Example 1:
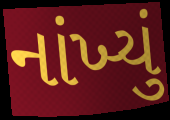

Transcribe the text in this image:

નાંખ્યું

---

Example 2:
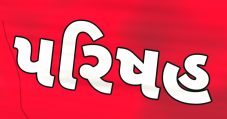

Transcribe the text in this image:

પરિષહ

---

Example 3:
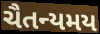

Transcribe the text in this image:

ચૈતન્યમય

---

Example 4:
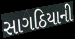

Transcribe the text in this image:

સાગઠિયાની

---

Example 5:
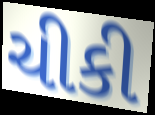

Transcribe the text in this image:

ચીકી